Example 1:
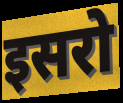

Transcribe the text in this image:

इसरो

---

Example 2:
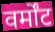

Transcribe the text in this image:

वर्मोंट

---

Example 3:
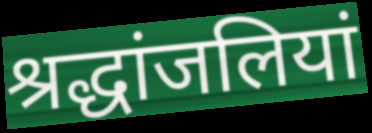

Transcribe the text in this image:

श्रद्धांजलियां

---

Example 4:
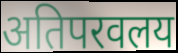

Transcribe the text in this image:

अतिपरवलय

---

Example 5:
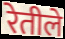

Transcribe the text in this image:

रेतीले